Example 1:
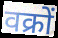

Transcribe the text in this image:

वक्रों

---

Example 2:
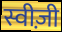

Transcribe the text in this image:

स्वीज़ी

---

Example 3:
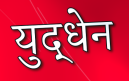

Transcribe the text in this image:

युद्धेन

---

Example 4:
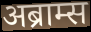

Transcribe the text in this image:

अब्राम्स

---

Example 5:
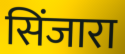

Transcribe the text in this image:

सिंजारा